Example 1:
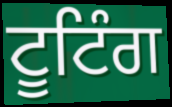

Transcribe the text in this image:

ਟੂਟਿੰਗ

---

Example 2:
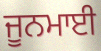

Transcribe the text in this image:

ਜੂਨਮਾਈ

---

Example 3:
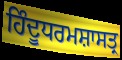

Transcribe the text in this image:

ਹਿੰਦੂਧਰਮਸ਼ਾਸਤ੍ਰ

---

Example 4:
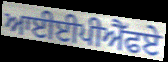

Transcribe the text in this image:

ਆਈਈਪੀਐੱਫਏ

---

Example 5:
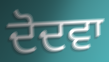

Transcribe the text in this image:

ਦੋਦਵਾ